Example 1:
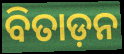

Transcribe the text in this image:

ବିତାଡ଼ନ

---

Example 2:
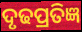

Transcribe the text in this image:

ଦୃଢପ୍ରତିଜ୍ଞ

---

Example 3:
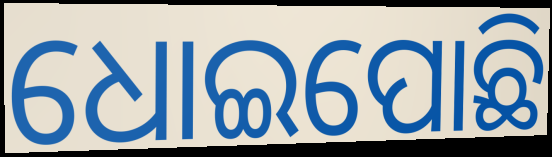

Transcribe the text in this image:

ଧୋଇପୋଛି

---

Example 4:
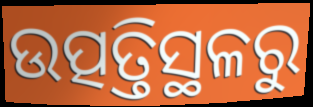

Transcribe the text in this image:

ଉତ୍ପତ୍ତିସ୍ଥଳରୁ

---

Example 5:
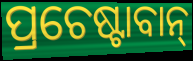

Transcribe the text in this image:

ପ୍ରଚେଷ୍ଟାବାନ୍